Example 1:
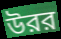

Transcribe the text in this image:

উরর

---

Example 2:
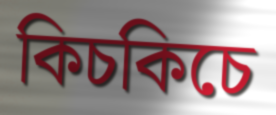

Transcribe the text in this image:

কিচকিচে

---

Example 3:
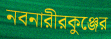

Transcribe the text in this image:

নবনারীরকুঞ্জের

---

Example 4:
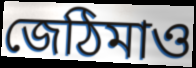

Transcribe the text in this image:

জেঠিমাও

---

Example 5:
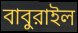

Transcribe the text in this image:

বাবুরাইল